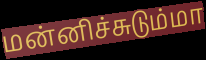
மன்னிச்சுடும்மா